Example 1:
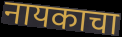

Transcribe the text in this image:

नायकाचा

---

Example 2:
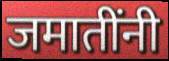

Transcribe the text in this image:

जमातींनी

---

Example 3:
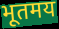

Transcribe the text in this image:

भूतमय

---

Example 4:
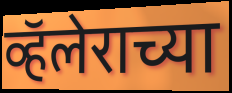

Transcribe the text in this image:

व्हॅलेराच्या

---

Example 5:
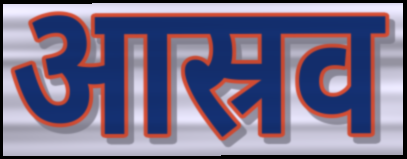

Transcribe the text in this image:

आस्रव